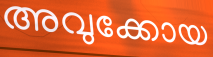
അവുക്കോയ